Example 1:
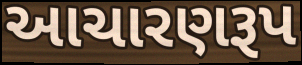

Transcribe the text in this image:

આચારણરૂપ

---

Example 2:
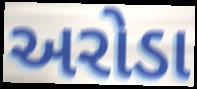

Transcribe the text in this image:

અરોડા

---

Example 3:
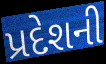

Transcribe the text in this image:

પ્રદેશની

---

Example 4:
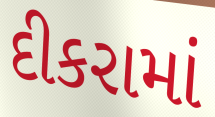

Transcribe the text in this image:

દીકરામાં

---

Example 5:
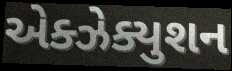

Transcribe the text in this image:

એક્ઝેક્યુશન